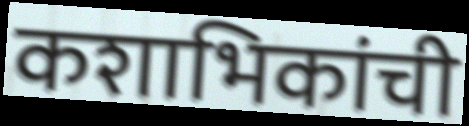
कशाभिकांची